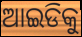
ଆଇଡିକୁ